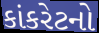
કાંકરેટનો